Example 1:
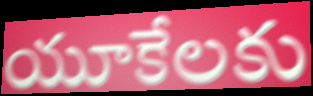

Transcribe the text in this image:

యూకేలకు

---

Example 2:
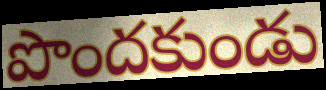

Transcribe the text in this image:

పొందకుండు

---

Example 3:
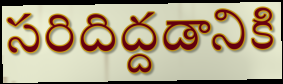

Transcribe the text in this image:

సరిదిద్దడానికి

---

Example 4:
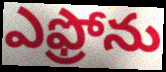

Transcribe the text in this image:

ఎఫ్రోను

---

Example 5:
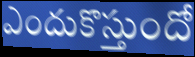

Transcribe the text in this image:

ఎందుకొస్తుందో